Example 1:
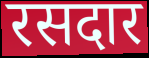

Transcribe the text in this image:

रसदार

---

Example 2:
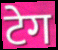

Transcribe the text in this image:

टेग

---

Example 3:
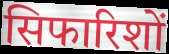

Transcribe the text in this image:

सिफारिशों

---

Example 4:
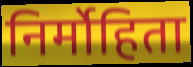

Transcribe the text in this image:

निर्मोहिता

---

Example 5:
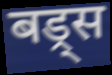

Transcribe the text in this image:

बड्र्स